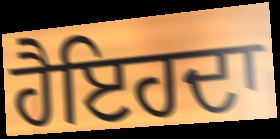
ਹੈਇਹਦਾ